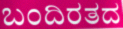
ಬಂದಿರತದ